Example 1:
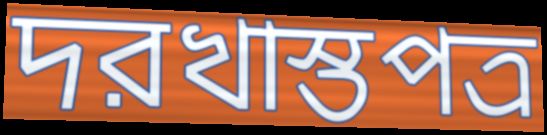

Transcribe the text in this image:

দরখাস্তপত্র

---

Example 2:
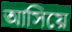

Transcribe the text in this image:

আসিয়ে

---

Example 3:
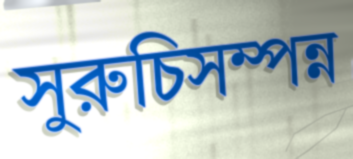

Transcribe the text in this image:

সুরুচিসম্পন্ন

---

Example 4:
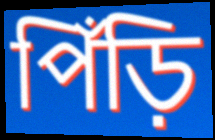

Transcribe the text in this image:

পিঁড়ি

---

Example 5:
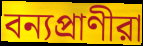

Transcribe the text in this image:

বন্যপ্রাণীরা